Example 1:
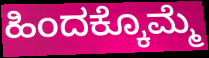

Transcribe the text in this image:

ಹಿಂದಕ್ಕೊಮ್ಮೆ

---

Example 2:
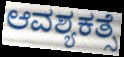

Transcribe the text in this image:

ಆವಶ್ಯಕತ್ಸೆ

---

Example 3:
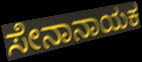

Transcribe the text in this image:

ಸೇನಾನಾಯಕ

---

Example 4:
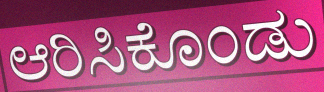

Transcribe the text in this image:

ಆರಿಸಿಕೊಂಡು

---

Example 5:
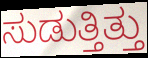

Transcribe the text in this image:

ಸುಡುತ್ತಿತ್ತು